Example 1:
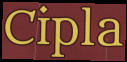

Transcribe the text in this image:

Cipla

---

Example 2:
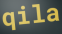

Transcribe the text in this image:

qila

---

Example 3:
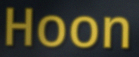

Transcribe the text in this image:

Hoon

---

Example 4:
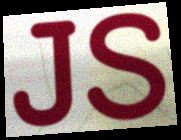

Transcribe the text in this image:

JS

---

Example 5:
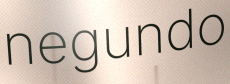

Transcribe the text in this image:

negundo